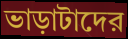
ভাড়াটাদের